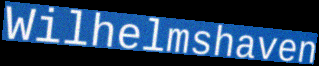
Wilhelmshaven